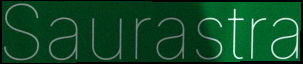
Saurastra